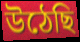
উঠেছি